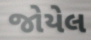
જોયેલ